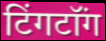
टिंगटॉंग